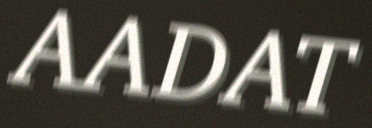
AADAT